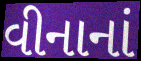
વીનાનાં